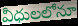
వీధులలోనూ